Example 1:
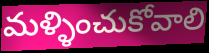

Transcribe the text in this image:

మళ్ళించుకోవాలి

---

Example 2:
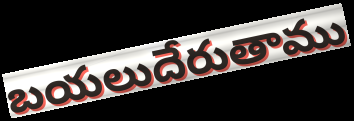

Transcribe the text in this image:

బయలుదేరుతాము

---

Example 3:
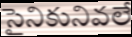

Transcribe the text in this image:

సైనికునివలే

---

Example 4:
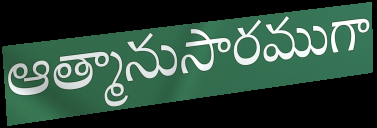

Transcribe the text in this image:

ఆత్మానుసారముగా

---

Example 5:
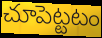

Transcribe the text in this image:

చూపెట్టటం